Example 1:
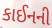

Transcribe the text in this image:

કાઈનની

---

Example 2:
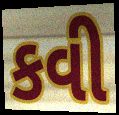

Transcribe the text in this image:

કવી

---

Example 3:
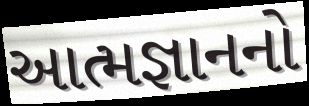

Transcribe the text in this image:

આત્મજ્ઞાનનો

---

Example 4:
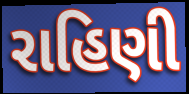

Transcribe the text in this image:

રાહિણી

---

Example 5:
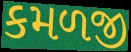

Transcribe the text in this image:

કમળજી